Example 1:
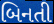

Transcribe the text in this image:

બિનતી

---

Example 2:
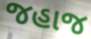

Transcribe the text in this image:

જહાજ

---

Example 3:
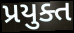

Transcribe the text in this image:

પ્રયુક્ત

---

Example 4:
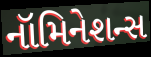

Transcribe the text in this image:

નૉમિનેશન્સ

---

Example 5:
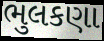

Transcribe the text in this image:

ભુલકણા